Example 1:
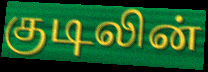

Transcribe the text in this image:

குடிலின்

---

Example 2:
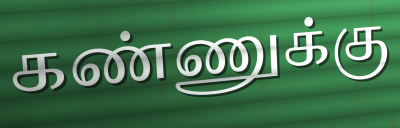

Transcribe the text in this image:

கண்ணுக்கு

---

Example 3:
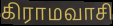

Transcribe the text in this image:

கிராமவாசி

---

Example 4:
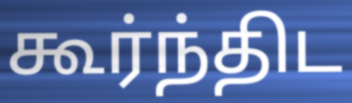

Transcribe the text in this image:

கூர்ந்திட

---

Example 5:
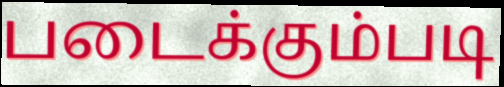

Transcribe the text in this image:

படைக்கும்படி